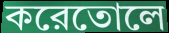
করেতোলে